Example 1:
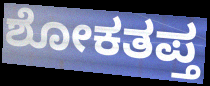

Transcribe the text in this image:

ಶೋಕತಪ್ತ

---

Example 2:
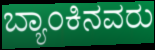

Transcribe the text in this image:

ಬ್ಯಾಂಕಿನವರು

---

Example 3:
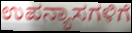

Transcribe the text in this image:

ಉಪನ್ಯಾಸಗಳಿಗೆ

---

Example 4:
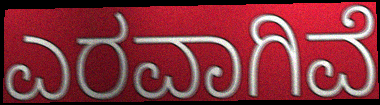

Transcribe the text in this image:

ಎರವಾಗಿವೆ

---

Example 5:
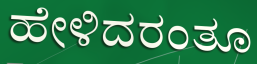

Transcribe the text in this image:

ಹೇಳಿದರಂತೂ